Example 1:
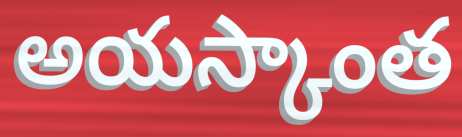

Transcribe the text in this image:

అయస్కాంత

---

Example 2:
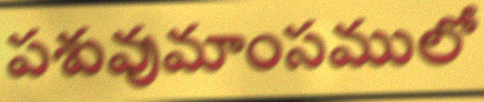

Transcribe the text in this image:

పశువుమాంసములో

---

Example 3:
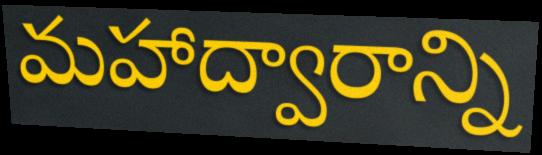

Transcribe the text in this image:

మహాద్వారాన్ని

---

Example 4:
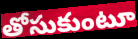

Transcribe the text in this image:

తోసుకుంటూ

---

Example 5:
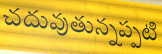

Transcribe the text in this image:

చదువుతున్నప్పటి